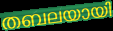
തബലയായി